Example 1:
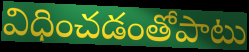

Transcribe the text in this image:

విధించడంతోపాటు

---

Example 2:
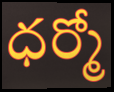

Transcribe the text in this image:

ధర్మో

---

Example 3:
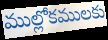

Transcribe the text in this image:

ముల్లోకములకు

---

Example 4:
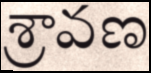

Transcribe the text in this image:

శ్రావణ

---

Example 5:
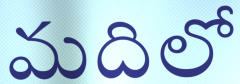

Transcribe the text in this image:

మదిలో